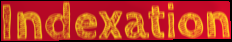
Indexation